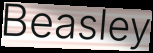
Beasley